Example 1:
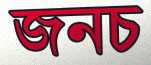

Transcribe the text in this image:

জনচ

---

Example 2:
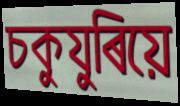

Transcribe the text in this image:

চকুযুৰিয়ে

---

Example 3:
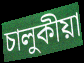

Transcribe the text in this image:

চালুকীয়া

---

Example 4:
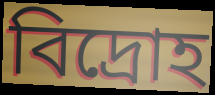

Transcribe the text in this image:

বিদ্ৰোহ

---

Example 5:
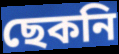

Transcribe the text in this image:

ছেকনি